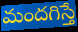
మందగిస్తే